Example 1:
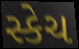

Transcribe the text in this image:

સ્કેચ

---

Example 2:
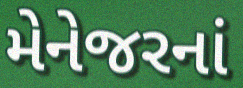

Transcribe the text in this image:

મેનેજરનાં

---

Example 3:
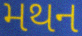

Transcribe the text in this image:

મથન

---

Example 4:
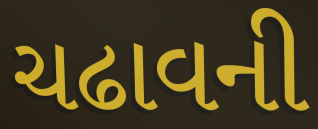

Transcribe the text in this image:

ચઢાવની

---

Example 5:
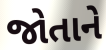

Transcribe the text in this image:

જોતાને